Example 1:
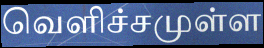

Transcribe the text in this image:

வெளிச்சமுள்ள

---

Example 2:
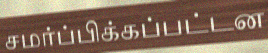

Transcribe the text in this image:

சமர்ப்பிக்கப்பட்டன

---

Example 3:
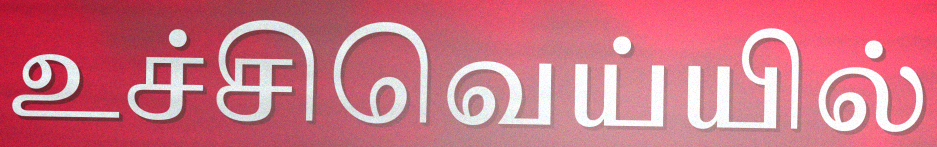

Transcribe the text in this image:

உச்சிவெய்யில்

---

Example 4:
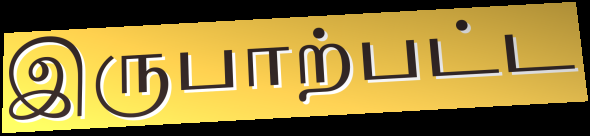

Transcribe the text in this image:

இருபாற்பட்ட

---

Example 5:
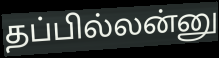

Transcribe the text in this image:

தப்பில்லன்னு